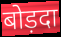
बोड़दा